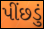
પીંછડું